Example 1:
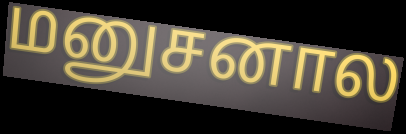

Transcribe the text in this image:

மனுசனால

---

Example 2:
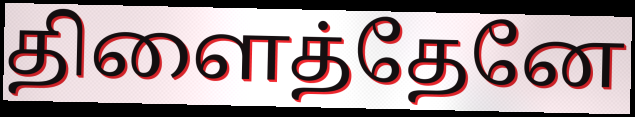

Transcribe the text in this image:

திளைத்தேனே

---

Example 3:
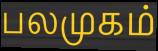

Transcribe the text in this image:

பலமுகம்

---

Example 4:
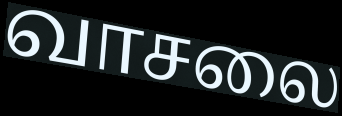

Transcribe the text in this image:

வாசலை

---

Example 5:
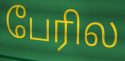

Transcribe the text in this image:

பேரில